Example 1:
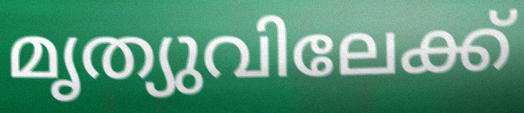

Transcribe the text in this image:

മൃത്യുവിലേക്ക്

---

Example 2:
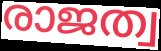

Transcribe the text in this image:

രാജത്വ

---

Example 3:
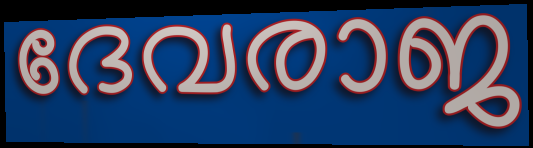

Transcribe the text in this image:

ദേവരാജ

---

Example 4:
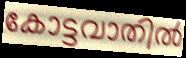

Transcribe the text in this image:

കോട്ടവാതിൽ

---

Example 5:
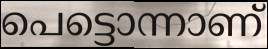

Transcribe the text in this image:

പെട്ടൊന്നാണ്